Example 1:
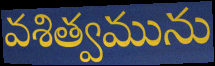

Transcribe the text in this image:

వశిత్వమును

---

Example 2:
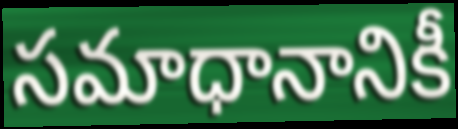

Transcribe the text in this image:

సమాధానానికీ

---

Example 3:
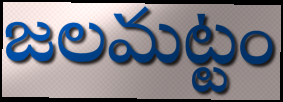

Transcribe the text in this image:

జలమట్టం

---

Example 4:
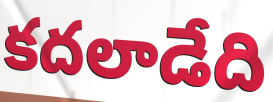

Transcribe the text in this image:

కదలాడేది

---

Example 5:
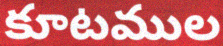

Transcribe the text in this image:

కూటముల